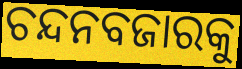
ଚନ୍ଦନବଜାରକୁ